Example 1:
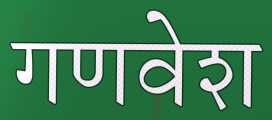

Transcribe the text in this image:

गणवेश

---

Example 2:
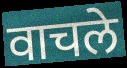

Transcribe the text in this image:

वाचले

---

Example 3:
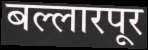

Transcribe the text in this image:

बल्लारपूर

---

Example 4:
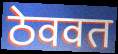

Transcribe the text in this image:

ठेववत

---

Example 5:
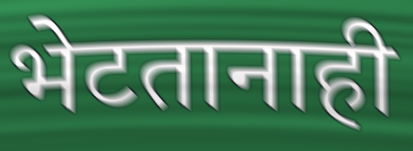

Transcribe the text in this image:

भेटतानाही